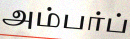
அம்பர்ப்